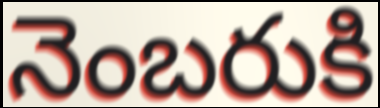
నెంబరుకి